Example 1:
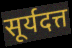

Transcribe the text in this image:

सूर्यदत्त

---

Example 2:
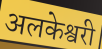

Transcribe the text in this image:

अलकेश्वरी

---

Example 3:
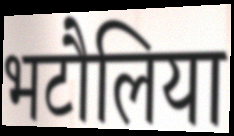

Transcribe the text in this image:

भटौलिया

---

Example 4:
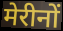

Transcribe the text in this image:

मेरीनों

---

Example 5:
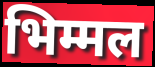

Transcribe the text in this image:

भिम्मल